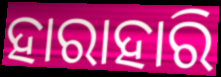
ହାରାହାରି